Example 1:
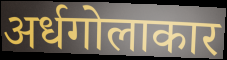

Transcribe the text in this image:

अर्धगोलाकार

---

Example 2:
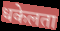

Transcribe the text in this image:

धकेलता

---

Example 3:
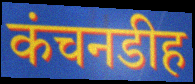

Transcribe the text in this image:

कंचनडीह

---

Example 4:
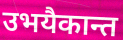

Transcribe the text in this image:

उभयैकान्त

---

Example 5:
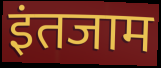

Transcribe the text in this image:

इंतजाम